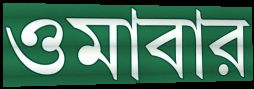
ওমাবার